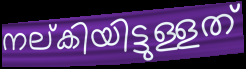
നല്കിയിട്ടുള്ളത്